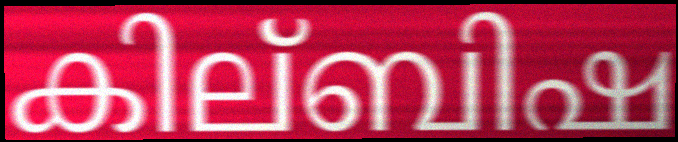
കില്ബിഷ